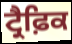
ਟ੍ਰੈਫ਼ਿਕ